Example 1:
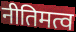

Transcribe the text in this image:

नीतिमत्व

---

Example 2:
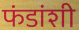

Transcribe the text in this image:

फंडांशी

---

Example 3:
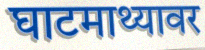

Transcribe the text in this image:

घाटमाथ्यावर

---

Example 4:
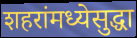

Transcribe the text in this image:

शहरांमध्येसुद्धा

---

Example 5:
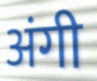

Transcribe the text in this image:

अंगी